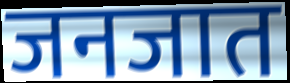
जनजात